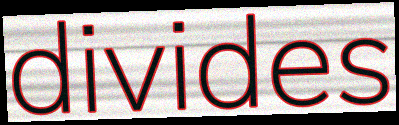
divides